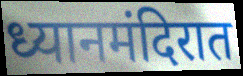
ध्यानमंदिरात